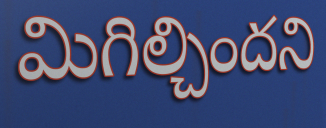
మిగిల్చిందని